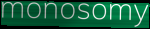
monosomy